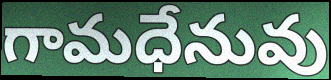
గామధేనువు